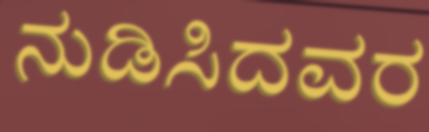
ನುಡಿಸಿದವರ